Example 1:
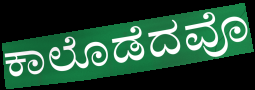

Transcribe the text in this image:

ಕಾಲೊಡೆದವೊ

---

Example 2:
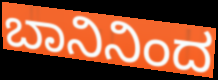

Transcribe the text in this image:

ಬಾನಿನಿಂದ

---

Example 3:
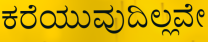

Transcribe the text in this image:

ಕರೆಯುವುದಿಲ್ಲವೇ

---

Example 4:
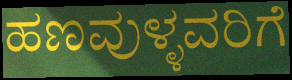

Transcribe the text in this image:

ಹಣವುಳ್ಳವರಿಗೆ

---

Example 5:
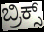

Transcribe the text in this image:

ಬ್ರಿಕ್ಸ್